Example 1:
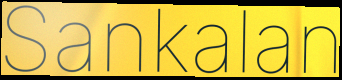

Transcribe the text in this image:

Sankalan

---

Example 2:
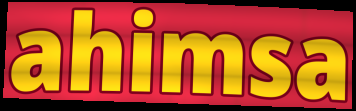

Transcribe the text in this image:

ahimsa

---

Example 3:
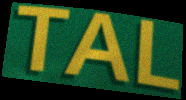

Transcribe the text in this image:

TAL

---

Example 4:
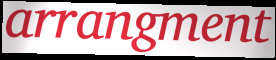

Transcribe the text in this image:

arrangment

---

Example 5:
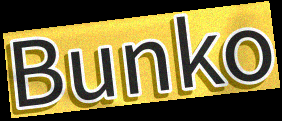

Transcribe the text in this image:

Bunko